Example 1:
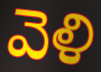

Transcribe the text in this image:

వెళి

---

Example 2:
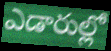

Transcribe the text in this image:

ఎడారుల్లో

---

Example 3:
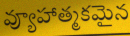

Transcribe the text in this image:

వ్యూహాత్మకమైన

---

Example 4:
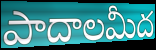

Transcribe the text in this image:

పాదాలమీద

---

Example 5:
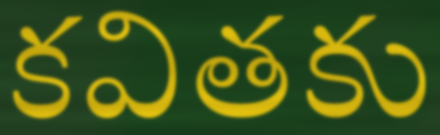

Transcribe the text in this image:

కవితకు